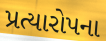
પ્રત્યારોપના